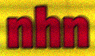
nhn